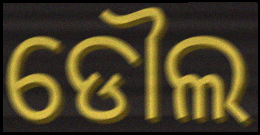
ଡୌଲ